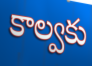
కాల్వకు